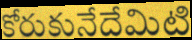
కోరుకునేదేమిటి